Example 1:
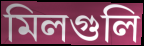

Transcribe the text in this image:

মিলগুলি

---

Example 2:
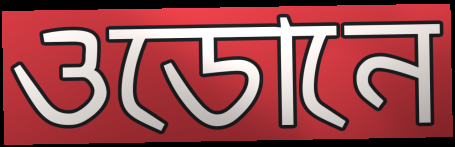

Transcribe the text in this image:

ওডোনে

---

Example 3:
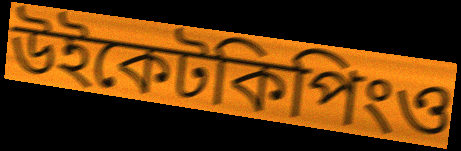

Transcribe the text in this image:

উইকেটকিপিংও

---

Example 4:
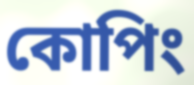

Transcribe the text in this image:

কোপিং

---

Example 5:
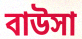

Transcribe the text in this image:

বাউসা